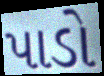
પાડો